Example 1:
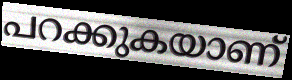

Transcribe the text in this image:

പറക്കുകയാണ്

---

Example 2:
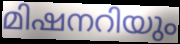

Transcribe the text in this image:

മിഷനറിയും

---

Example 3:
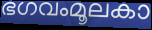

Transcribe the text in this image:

ഭഗവംമൂലകാ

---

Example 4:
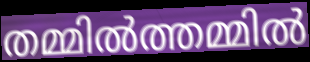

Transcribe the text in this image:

തമ്മിൽത്തമ്മിൽ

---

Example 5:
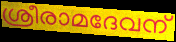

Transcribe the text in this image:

ശ്രീരാമദേവന്